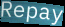
Repay